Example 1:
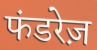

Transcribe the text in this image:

फंडरेज़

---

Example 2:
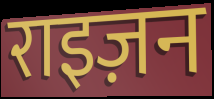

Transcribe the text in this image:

राइज़न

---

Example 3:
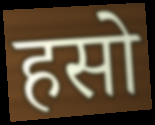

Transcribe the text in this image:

हसो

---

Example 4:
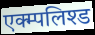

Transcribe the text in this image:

एक्म्पलिश्ड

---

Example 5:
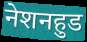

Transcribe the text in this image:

नेशनहुड